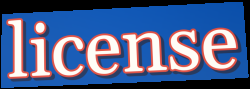
license